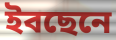
ইবছেনে